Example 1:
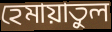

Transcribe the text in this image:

হেমায়াতুল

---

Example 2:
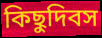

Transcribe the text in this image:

কিছুদিবস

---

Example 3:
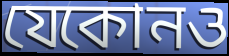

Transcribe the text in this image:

যেকোনও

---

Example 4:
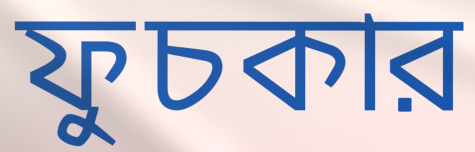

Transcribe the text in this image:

ফুচকার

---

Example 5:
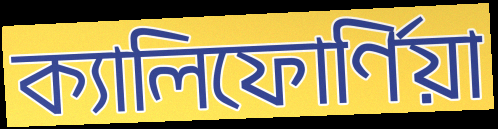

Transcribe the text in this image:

ক্যালিফোর্ণিয়া